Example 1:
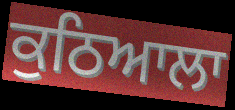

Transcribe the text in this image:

ਕੁਠਿਆਲਾ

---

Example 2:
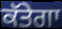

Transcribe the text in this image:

ਕੱਤੇਗਾ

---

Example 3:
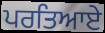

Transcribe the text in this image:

ਪਰਤਿਆਏ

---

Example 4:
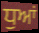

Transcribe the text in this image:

ਧੁਆਂ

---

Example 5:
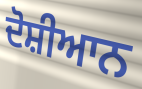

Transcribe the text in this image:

ਦੋਸ਼ੀਆਨ